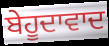
ਬੇਹੂਦਾਵਾਦ